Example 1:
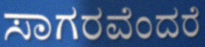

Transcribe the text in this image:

ಸಾಗರವೆಂದರೆ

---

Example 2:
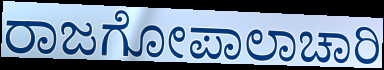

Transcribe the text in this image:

ರಾಜಗೋಪಾಲಾಚಾರಿ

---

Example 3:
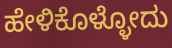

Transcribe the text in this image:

ಹೇಳಿಕೊಳ್ಳೋದು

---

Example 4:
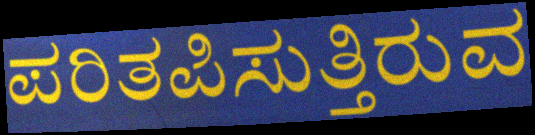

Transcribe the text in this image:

ಪರಿತಪಿಸುತ್ತಿರುವ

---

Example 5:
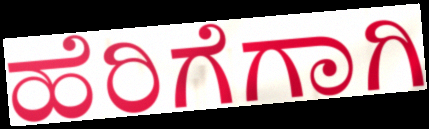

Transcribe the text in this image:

ಹೆರಿಗೆಗಾಗಿ